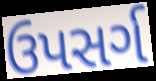
ઉપસર્ગ